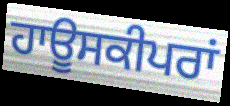
ਹਾਊਸਕੀਪਰਾਂ